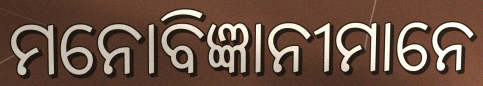
ମନୋବିଜ୍ଞାନୀମାନେ